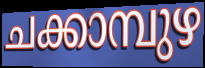
ചക്കാമ്പുഴ